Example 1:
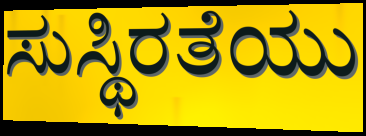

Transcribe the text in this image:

ಸುಸ್ಥಿರತೆಯು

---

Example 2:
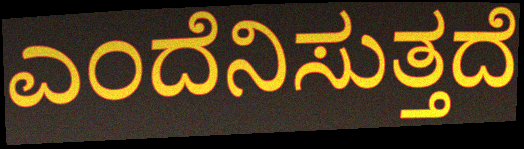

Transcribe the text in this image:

ಎಂದೆನಿಸುತ್ತದೆ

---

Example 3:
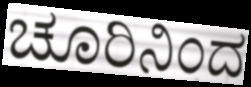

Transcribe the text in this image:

ಚೂರಿನಿಂದ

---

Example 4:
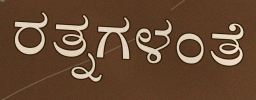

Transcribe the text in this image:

ರತ್ನಗಳಂತೆ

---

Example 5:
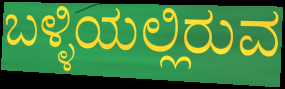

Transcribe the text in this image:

ಬಳ್ಳಿಯಲ್ಲಿರುವ